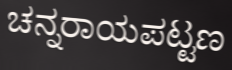
ಚನ್ನರಾಯಪಟ್ಟಣ